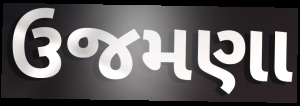
ઉજમણા